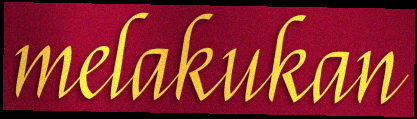
melakukan